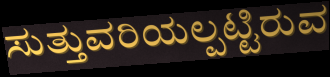
ಸುತ್ತುವರಿಯಲ್ಪಟ್ಟಿರುವ